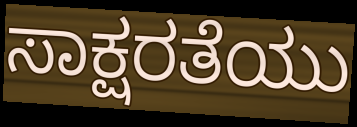
ಸಾಕ್ಷರತೆಯು